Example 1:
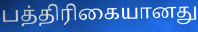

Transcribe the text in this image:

பத்திரிகையானது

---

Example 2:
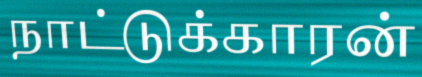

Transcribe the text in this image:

நாட்டுக்காரன்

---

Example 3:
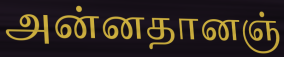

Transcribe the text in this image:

அன்னதானஞ்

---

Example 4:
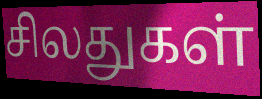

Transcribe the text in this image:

சிலதுகள்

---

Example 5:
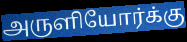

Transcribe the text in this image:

அருளியோர்க்கு